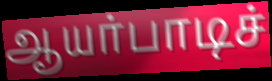
ஆயர்பாடிச்